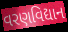
વરણવિદ્યાન